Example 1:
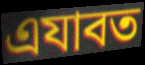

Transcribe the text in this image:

এযাবত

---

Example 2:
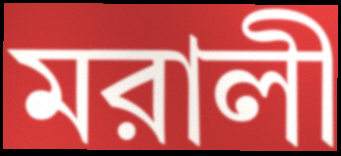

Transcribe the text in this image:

মরালী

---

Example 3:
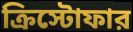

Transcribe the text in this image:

ক্রিস্টোফার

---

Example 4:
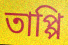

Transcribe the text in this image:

তাপ্পি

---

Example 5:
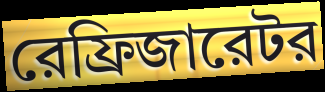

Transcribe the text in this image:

রেফ্রিজারেটর